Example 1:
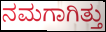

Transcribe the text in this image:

ನಮಗಾಗಿತ್ತು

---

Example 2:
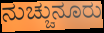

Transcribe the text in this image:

ನುಚ್ಚುನೂರು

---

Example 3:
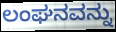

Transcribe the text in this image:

ಲಂಘನವನ್ನು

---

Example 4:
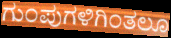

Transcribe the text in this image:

ಗುಂಪುಗಳಿಗಿಂತಲೂ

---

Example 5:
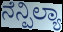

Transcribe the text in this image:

ನೆನ್ಪಿಲ್ಯಾ